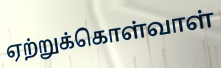
ஏற்றுக்கொள்வாள்